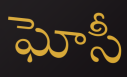
ఘోసీ